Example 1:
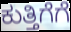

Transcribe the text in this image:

ಕುತ್ತಿಗೆಗೆ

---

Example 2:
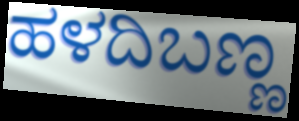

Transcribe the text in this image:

ಹಳದಿಬಣ್ಣ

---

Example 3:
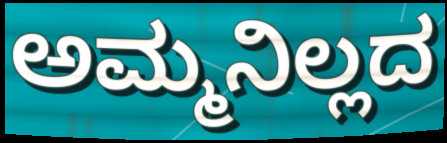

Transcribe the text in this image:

ಅಮ್ಮನಿಲ್ಲದ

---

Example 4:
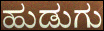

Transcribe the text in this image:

ಹುಡುಗು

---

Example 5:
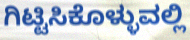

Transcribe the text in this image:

ಗಿಟ್ಟಿಸಿಕೊಳ್ಳುವಲ್ಲಿ